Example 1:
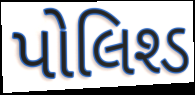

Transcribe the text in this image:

પોલિશ્ડ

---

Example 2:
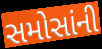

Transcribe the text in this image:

સમોસાંની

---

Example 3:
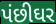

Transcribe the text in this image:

પંછીઘર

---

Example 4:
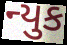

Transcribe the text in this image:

ન્યુક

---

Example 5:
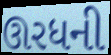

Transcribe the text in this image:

ઊરધની